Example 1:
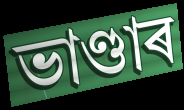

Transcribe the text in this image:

ভাণ্ডাৰ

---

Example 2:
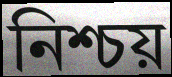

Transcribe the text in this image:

নিশ্চয়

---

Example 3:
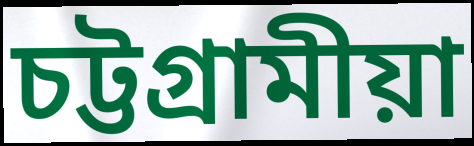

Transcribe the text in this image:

চট্টগ্ৰামীয়া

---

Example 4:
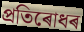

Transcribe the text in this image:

প্ৰতিৰোধৰ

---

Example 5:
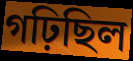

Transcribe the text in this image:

গঢ়িছিল